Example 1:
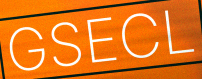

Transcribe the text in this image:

GSECL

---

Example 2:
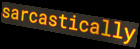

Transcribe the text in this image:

sarcastically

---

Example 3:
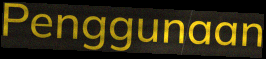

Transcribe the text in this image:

Penggunaan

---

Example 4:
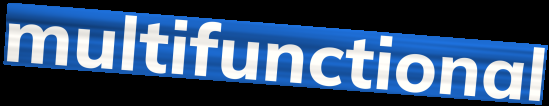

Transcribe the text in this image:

multifunctional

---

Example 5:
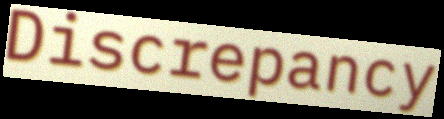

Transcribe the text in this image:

Discrepancy